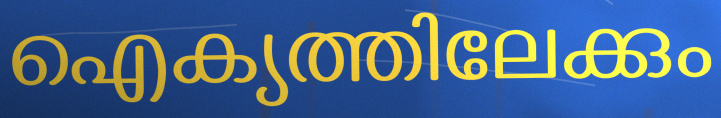
ഐക്യത്തിലേക്കും